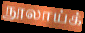
நூலாய்க்